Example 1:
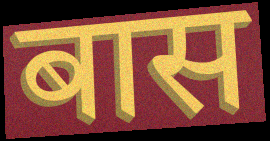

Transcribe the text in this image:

बास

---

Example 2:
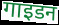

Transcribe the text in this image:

गाइडन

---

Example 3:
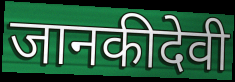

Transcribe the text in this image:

जानकीदेवी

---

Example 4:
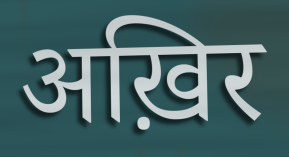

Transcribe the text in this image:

अख़िर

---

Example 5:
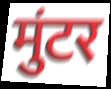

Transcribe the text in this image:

मुंटर